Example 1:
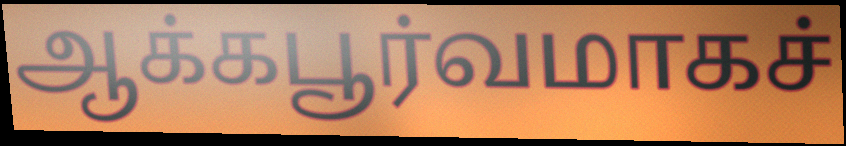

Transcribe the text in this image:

ஆக்கபூர்வமாகச்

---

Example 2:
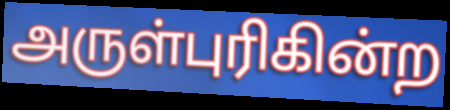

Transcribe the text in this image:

அருள்புரிகின்ற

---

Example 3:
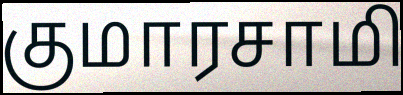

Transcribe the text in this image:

குமாரசாமி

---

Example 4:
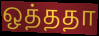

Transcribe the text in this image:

ஒத்ததா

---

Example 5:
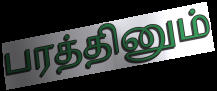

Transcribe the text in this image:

பரத்தினும்